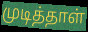
முடித்தாள்